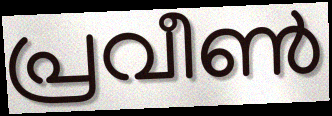
പ്രവീൺ